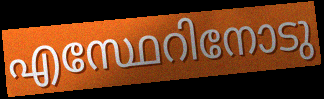
എസ്ഥേറിനോടു